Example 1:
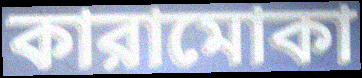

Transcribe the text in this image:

কারামোকা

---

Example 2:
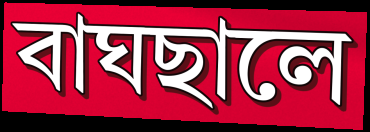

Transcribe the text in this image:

বাঘছালে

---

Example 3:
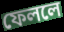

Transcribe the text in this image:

ফেললে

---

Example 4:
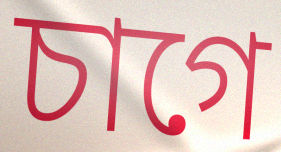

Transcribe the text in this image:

চাগে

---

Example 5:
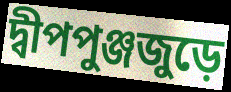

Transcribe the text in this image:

দ্বীপপুঞ্জজুড়ে